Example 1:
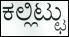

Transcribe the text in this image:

ಕಲ್ಲಿಟ್ಟು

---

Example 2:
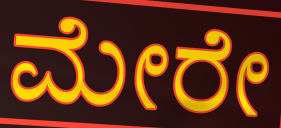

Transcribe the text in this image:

ಮೇರೇ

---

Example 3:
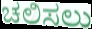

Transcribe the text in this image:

ಚಲಿಸಲು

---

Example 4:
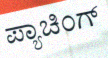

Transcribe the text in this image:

ಪ್ಯಾಚಿಂಗ್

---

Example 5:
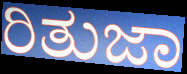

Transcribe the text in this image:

ರಿತುಜಾ